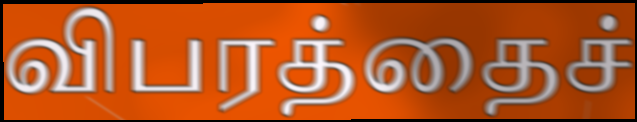
விபரத்தைச்